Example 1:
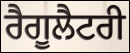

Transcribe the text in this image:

ਰੈਗੂਲੈਟਰੀ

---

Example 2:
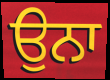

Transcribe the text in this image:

ਉਨਾ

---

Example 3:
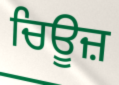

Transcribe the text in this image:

ਚਿਊਜ਼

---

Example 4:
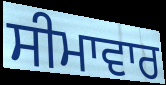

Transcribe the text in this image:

ਸੀਮਾਵਾਰ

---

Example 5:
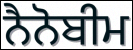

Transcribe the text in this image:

ਨੈਨੋਬੀਮ